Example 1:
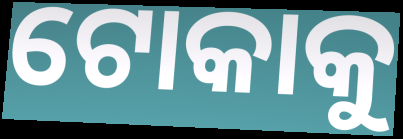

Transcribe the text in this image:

ଟୋକାକୁ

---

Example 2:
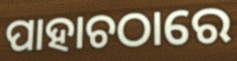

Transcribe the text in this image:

ପାହାଚଠାରେ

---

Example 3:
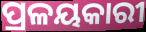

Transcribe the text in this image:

ପ୍ରଳୟକାରୀ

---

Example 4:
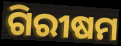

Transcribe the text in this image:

ଗିରୀଷମ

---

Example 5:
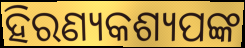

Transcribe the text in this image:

ହିରଣ୍ୟକଶ୍ୟପଙ୍କ